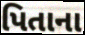
પિતાના